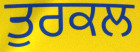
ਤੁਰਕਲ